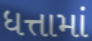
ધત્તામાં